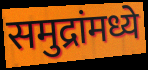
समुद्रांमध्ये